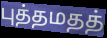
புத்தமதத்